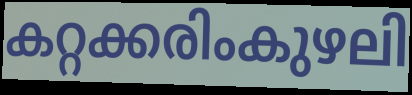
കറ്റക്കരിംകുഴലി